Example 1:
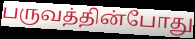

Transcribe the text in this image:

பருவத்தின்போது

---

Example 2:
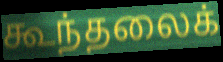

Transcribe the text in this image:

கூந்தலைக்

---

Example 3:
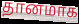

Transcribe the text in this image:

தானமாக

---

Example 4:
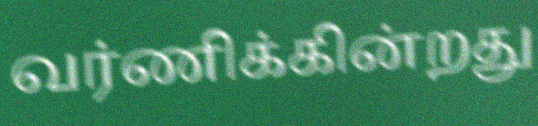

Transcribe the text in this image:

வர்ணிக்கின்றது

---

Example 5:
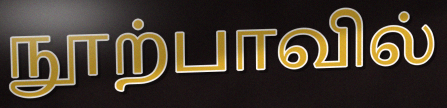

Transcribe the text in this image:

நூற்பாவில்